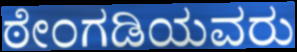
ಠೇಂಗಡಿಯವರು